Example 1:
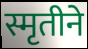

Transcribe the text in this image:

स्मृतीने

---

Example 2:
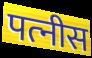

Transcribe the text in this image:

पत्‍नीस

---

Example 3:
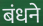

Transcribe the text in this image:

बंधने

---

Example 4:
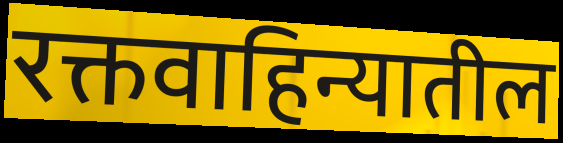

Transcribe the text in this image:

रक्तवाहिन्यातील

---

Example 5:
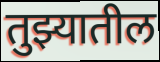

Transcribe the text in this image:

तुझ्यातील